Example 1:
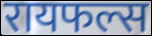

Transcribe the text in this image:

रायफल्स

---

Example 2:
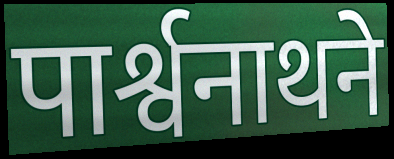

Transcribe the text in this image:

पार्श्वनाथने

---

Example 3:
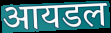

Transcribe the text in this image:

आयडल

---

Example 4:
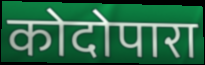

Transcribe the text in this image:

कोदोपारा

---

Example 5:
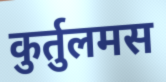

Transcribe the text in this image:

कुर्तुलमस